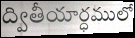
ద్వితీయార్ధములో